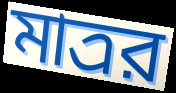
মাত্রর